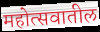
महोत्सवातील